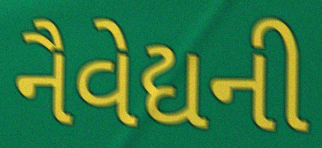
નૈવેદ્યની